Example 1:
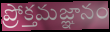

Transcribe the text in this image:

ప్రోక్తమజ్ఞానం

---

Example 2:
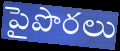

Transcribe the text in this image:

పైపొరలు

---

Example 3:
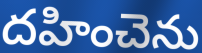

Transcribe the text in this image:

దహించెను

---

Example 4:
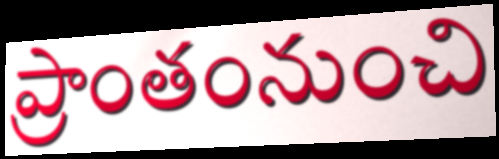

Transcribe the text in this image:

ప్రాంతంనుంచి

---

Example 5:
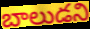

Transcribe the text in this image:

బాలుడని